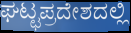
ಘಟ್ಟಪ್ರದೇಶದಲ್ಲಿ